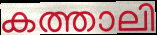
കത്താലി